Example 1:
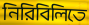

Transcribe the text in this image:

নিরিবিলিতে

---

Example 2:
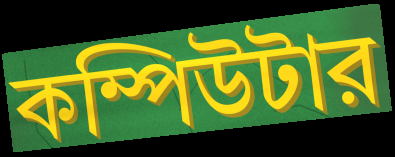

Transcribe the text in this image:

কম্পিউটার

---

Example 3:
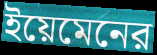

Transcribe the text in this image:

ইয়েমেনের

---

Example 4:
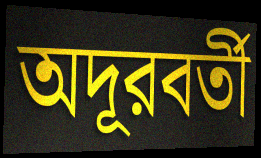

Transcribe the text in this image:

অদূরবর্তী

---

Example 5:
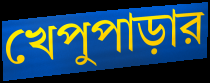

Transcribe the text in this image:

খেপুপাড়ার